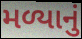
મળ્યાનું